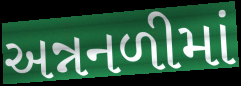
અન્નનળીમાં